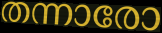
തന്നാരോ